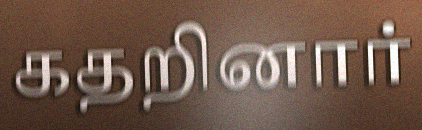
கதறினார்